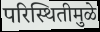
परिस्थितीमुळे